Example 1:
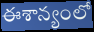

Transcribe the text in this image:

ఈశాన్యంలో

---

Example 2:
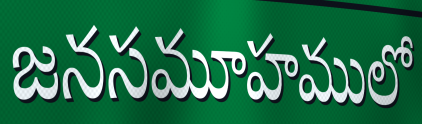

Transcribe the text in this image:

జనసమూహములో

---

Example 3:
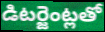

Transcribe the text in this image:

డిటర్జెంట్లతో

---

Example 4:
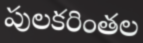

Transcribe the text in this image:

పులకరింతల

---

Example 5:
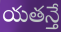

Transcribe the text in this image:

యతన్తే